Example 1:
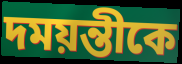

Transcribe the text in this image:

দময়ন্তীকে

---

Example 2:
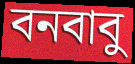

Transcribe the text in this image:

বনবাবু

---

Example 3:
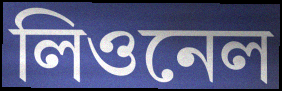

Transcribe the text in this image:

লিওনেল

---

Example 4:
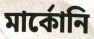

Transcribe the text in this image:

মার্কোনি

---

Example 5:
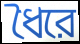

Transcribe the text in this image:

ধৈরে